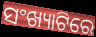
ସଂଖ୍ୟାଟିରେ